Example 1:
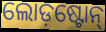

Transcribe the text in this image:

ଲୋଡ଼ଷ୍ଟୋନ୍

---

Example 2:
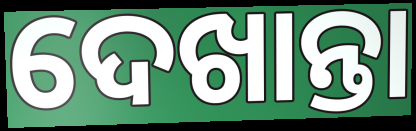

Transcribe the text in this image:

ଦେଖାନ୍ତା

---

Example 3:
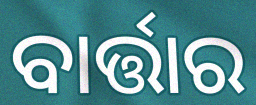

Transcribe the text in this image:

ବାର୍ତ୍ତାର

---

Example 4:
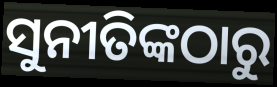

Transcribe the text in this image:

ସୁନୀତିଙ୍କଠାରୁ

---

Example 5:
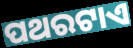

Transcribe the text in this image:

ପଥରଟାଏ